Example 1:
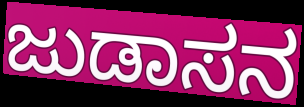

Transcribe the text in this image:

ಜುಡಾಸನ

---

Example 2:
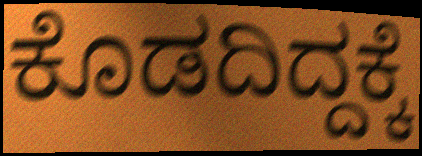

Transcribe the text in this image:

ಕೊಡದಿದ್ದಕ್ಕೆ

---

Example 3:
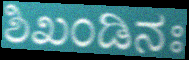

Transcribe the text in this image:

ಶಿಖಂಡಿನಃ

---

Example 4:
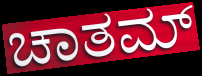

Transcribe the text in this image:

ಚಾತಮ್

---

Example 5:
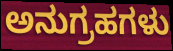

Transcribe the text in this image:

ಅನುಗ್ರಹಗಳು